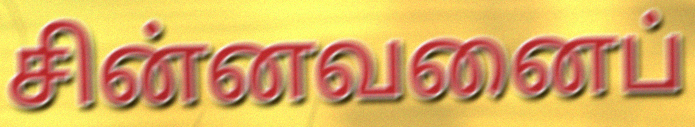
சின்னவனைப்